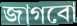
জাগবো